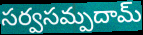
సర్వసమ్పదామ్